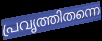
പ്രവൃത്തിതന്നെ